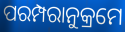
ପରମ୍ପରାନୁକ୍ରମେ